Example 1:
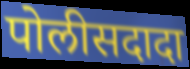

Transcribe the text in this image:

पोलीसदादा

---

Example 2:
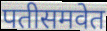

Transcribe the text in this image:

पतीसमवेत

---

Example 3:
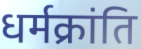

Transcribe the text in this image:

धर्मक्रांति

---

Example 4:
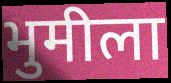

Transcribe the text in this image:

भुमीला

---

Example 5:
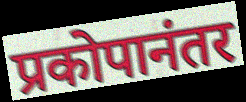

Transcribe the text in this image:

प्रकोपानंतर